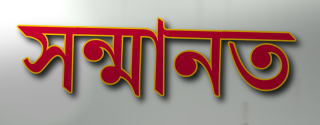
সন্মানত